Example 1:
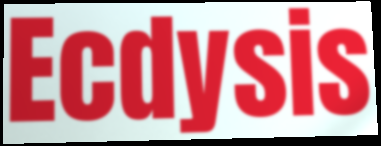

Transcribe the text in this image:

Ecdysis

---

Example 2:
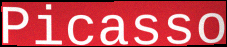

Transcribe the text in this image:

Picasso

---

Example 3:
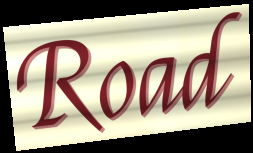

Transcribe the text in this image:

Road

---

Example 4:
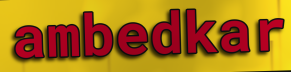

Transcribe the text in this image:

ambedkar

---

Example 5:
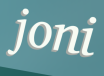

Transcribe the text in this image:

joni